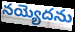
నయ్యెదను